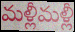
మళ్లీమళ్లీ